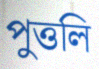
পুত্তলি